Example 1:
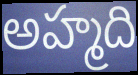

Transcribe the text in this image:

అహ్మది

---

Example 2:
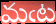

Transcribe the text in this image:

మఁట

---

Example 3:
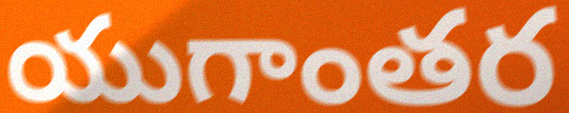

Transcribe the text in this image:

యుగాంతర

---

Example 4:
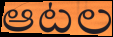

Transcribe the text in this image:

ఆటల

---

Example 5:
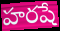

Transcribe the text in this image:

హరషే